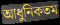
আধুনিকতম